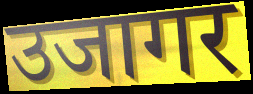
उजागर